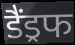
डैंड्रफ